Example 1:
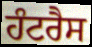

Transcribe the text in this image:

ਹੰਟਰੈਸ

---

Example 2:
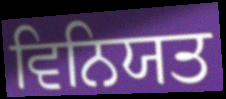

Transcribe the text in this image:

ਵਿਨਿਯਤ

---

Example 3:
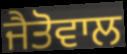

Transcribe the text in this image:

ਜੈਤੋਵਾਲ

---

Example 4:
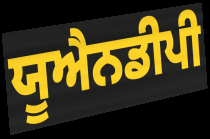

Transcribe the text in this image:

ਯੂਐਨਡੀਪੀ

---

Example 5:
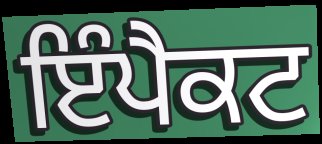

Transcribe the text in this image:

ਇੰਪੈਕਟ